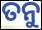
ତନୁ